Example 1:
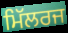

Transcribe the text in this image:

ਮਿੱਲਰਜ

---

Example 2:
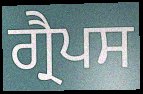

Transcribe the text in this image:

ਗ੍ਰੈਪਸ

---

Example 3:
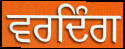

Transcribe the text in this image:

ਵਰਦਿੰਗ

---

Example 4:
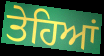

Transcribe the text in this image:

ਤੇਹਿਆਂ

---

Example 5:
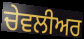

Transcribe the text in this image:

ਚੇਵਲੀਅਰ